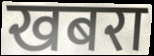
खबरा